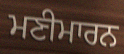
ਮਣੀਮਾਰਨ